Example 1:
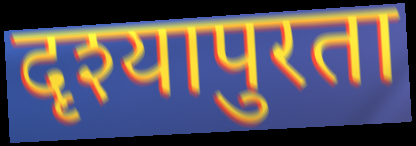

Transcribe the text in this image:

दृश्यापुरता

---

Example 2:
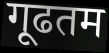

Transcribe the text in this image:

गूढतम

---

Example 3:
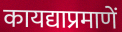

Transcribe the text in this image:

कायद्याप्रमाणें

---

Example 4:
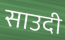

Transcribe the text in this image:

साउदी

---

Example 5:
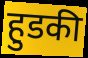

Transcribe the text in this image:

हुडकी